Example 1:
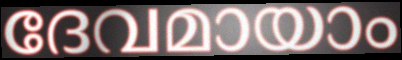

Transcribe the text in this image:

ദേവമായാം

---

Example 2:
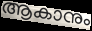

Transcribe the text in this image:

ആകാനും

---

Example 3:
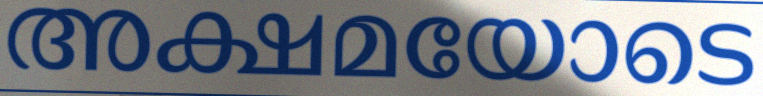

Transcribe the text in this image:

അക്ഷമയോടെ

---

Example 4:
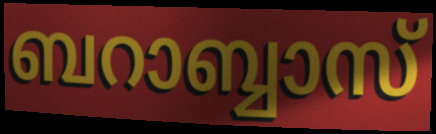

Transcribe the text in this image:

ബറാബ്ബാസ്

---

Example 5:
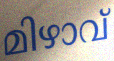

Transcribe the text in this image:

മിഴാവ്